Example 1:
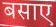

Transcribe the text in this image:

बसाए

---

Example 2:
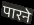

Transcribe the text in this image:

पारने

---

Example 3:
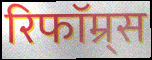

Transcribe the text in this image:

रिफॉम्र्स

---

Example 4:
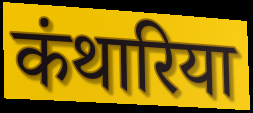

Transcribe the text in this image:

कंथारिया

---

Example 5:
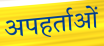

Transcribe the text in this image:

अपहर्ताओं